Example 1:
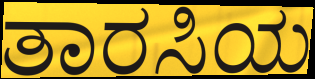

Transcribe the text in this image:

ತಾರಸಿಯ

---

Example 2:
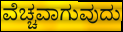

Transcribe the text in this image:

ವೆಚ್ಚವಾಗುವುದು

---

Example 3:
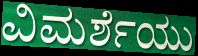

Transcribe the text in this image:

ವಿಮರ್ಶೆಯು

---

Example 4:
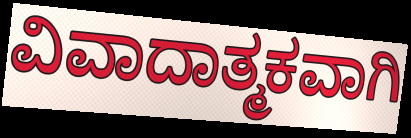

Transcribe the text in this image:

ವಿವಾದಾತ್ಮಕವಾಗಿ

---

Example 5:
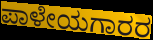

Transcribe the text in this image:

ಪಾಳೇಯಗಾರರ